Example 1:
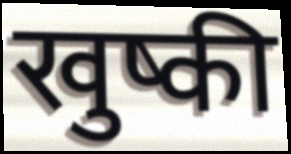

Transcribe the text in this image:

खुष्की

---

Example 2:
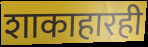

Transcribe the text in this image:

शाकाहारही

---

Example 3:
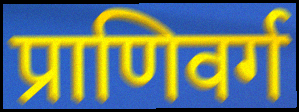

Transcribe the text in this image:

प्राणिवर्ग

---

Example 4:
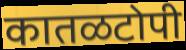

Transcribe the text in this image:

कातळटोपी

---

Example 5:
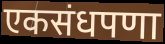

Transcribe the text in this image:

एकसंधपणा